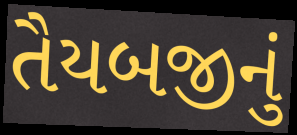
તૈયબજીનું